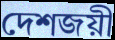
দেশজয়ী